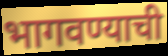
भागवण्याची